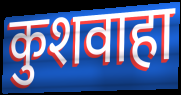
कुशवाहा